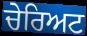
ਚੇਰਿਅਟ